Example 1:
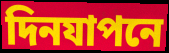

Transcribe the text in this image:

দিনযাপনে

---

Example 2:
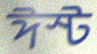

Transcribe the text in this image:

ঈস্ট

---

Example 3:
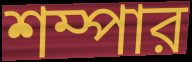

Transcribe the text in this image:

শম্পার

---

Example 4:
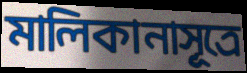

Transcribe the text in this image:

মালিকানাসূত্রে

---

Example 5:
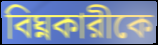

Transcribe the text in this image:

বিঘ্নকারীকে